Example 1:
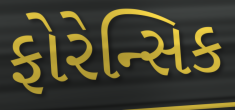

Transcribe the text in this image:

ફોરેન્સિક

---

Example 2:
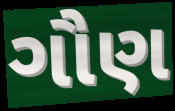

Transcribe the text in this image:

ગૌણ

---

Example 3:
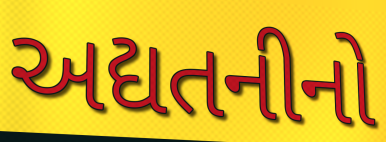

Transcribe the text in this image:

અદ્યતનીનો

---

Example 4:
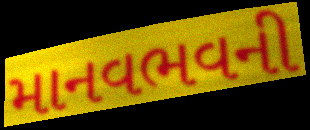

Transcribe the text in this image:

માનવભવની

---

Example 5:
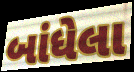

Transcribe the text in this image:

બાંધેલા